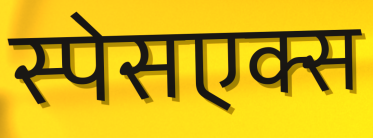
स्पेसएक्स